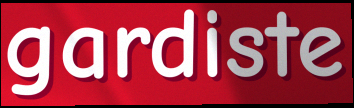
gardiste